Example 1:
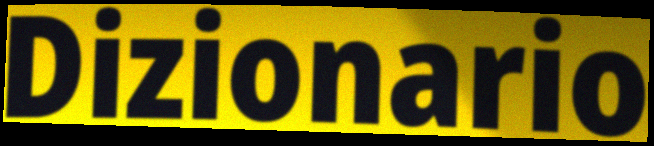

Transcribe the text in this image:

Dizionario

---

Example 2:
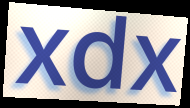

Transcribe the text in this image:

xdx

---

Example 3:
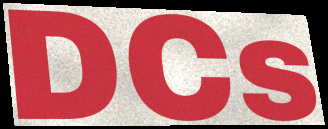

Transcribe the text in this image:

DCs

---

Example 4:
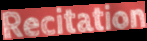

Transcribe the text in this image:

Recitation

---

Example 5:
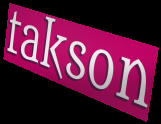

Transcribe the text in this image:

takson